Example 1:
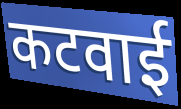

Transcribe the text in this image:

कटवाई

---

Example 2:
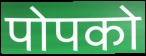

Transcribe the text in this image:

पोपको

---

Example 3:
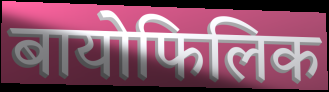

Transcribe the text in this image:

बायोफिलिक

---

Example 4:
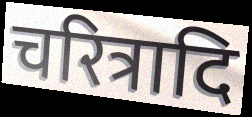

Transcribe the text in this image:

चरित्रादि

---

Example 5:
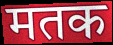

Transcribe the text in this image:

मतक